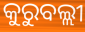
କୁରୁବଲ୍ଲୀ